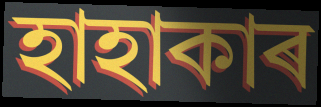
হাহাকাৰ